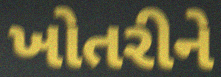
ખોતરીને